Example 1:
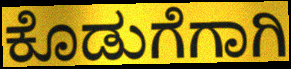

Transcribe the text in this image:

ಕೊಡುಗೆಗಾಗಿ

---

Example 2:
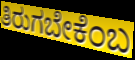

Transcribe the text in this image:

ತಿರುಗಬೇಕೆಂಬ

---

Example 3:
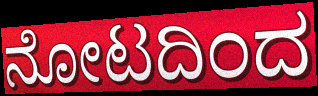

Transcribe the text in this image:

ನೋಟದಿಂದ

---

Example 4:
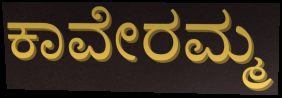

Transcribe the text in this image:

ಕಾವೇರಮ್ಮ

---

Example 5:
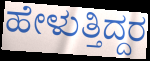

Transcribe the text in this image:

ಹೇಳುತ್ತಿದ್ದರ